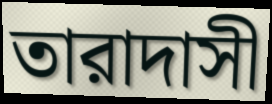
তারাদাসী